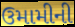
ઉમામીની